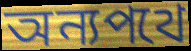
অন্যপথে